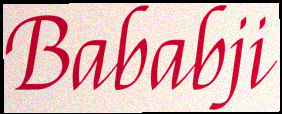
Bababji